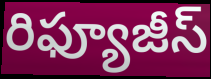
రిఫ్యూజీస్